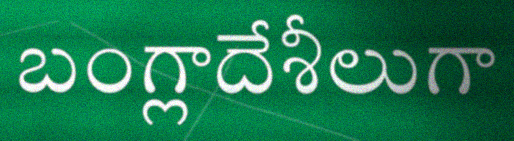
బంగ్లాదేశీలుగా